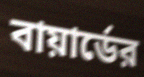
বায়ার্ডের